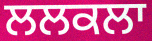
ਲਲਕਲਾ